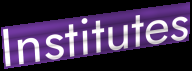
Institutes